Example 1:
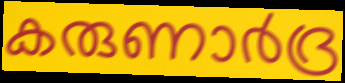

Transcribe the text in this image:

കരുണാർദ്ര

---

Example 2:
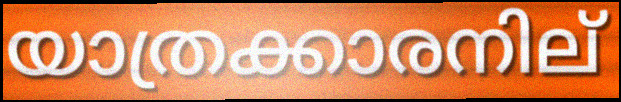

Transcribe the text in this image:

യാത്രക്കാരനില്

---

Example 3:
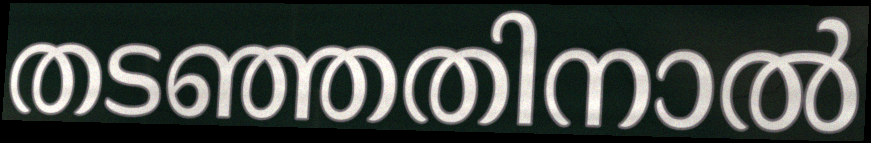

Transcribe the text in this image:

തടഞ്ഞതിനാൽ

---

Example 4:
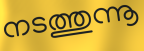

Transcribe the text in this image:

നടത്തുന്നൂ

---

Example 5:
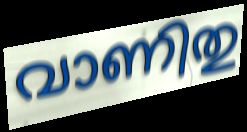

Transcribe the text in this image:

വാണിതു